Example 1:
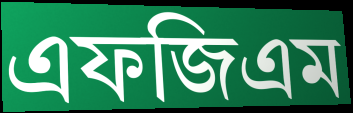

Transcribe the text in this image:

এফজিএম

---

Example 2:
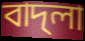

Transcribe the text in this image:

বাদ্‌লা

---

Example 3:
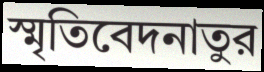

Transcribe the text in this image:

স্মৃতিবেদনাতুর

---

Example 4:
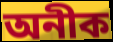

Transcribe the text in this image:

অনীক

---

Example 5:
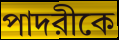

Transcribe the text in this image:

পাদরীকে